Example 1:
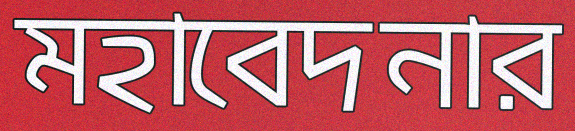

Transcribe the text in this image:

মহাবেদনার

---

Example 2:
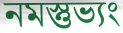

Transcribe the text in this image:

নমস্তুভ্যং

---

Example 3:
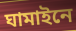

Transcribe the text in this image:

ঘামাইনে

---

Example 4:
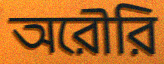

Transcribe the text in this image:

অরৌরি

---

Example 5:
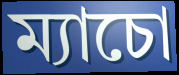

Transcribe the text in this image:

ম্যাচো